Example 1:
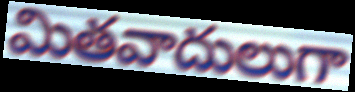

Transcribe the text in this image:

మితవాదులుగా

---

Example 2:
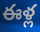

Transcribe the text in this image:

ఈళ్ల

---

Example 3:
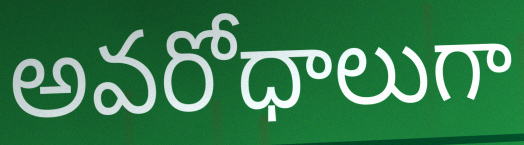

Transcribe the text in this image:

అవరోధాలుగా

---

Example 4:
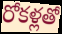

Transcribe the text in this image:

రోకళ్లతో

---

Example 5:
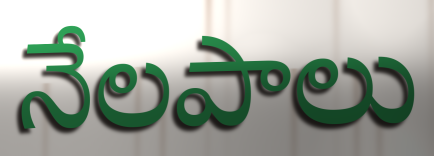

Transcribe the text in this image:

నేలపాలు